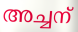
അച്ചന്